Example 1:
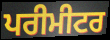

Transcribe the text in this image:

ਪਰੀਮੀਟਰ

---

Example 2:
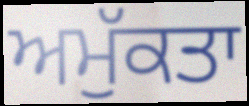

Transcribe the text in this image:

ਅਮੁੱਕਤਾ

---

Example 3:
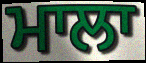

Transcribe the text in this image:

ਮਾਲਾ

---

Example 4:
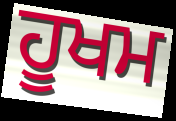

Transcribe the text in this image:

ਹੂਖਮ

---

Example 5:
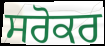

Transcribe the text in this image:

ਸਰੋਕਰ